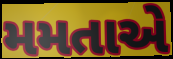
મમતાએ